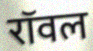
रॉवल